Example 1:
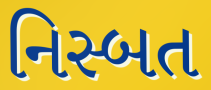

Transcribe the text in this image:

નિસ્બત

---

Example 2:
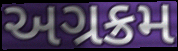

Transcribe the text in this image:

અગ્રક્રમ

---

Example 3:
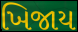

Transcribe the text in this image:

ખિજાય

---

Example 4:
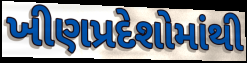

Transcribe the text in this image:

ખીણપ્રદેશોમાંથી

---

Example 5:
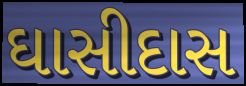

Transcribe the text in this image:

ઘાસીદાસ